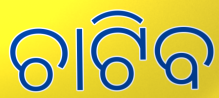
ଚାଟିବ